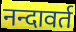
नन्दावर्त